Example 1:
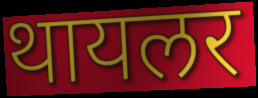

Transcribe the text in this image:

थायलर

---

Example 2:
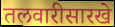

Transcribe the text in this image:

तलवारीसारखे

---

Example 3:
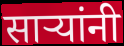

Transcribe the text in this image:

साऱ्यांनी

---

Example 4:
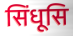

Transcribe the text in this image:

सिंधूसि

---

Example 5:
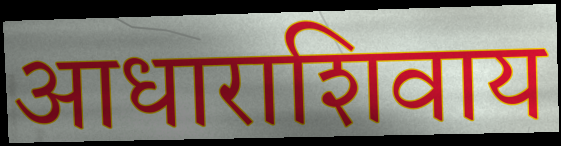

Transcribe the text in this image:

आधाराशिवाय